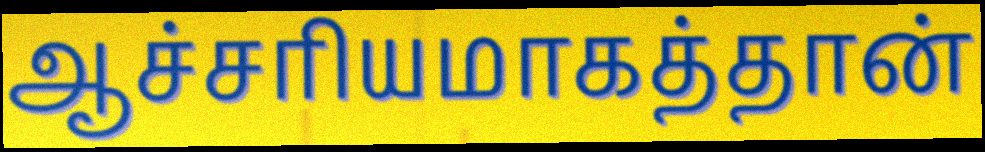
ஆச்சரியமாகத்தான்